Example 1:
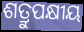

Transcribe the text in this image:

ଶତ୍ରୁପକ୍ଷୀୟ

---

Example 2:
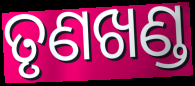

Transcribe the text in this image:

ତୃଣଖଣ୍ଡ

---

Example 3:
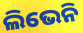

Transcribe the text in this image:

ଲିଭେନି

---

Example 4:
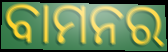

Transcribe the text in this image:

ବାମନର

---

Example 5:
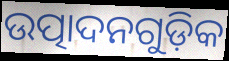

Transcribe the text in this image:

ଉତ୍ପାଦନଗୁଡ଼ିକ